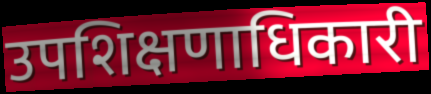
उपशिक्षणाधिकारी